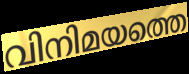
വിനിമയത്തെ